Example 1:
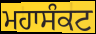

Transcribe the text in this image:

ਮਹਾਸੰਕਟ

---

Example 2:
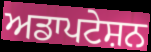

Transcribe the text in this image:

ਅਡਾਪਟੇਸ਼ਨ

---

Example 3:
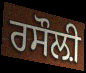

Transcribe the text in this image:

ਰਸੌਲ਼ੀ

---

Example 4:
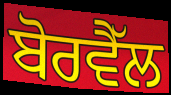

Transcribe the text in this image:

ਬੋਰਵੈੱਲ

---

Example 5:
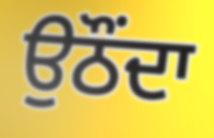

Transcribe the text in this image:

ਉਠੌਂਦਾ